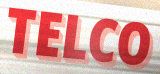
TELCO